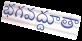
భగవద్దూతా